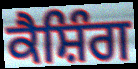
ਕੈਸ਼ਿੰਗ